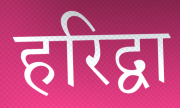
हरिद्वा